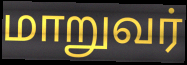
மாறுவர்